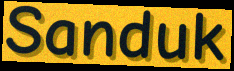
Sanduk